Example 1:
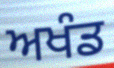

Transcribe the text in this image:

ਅਖੰਡ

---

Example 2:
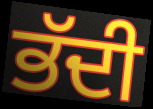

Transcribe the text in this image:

ਭੱਦੀ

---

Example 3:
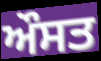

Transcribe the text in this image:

ਔਸਤ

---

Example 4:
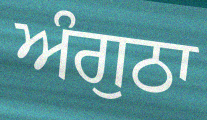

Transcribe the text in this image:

ਅੰਗੁਠਾ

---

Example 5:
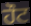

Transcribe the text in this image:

ਹੌਟ